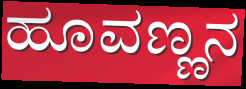
ಹೂವಣ್ಣನ